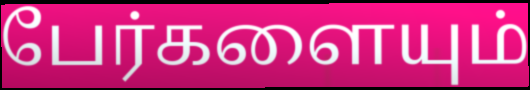
பேர்களையும்